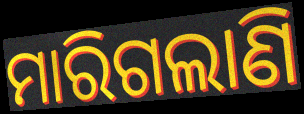
ମାରିଗଲାଣି